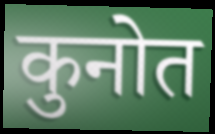
कुनोत